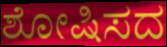
ಶೋಷಿಸದ